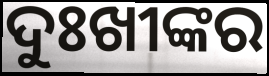
ଦୁଃଖୀଙ୍କର